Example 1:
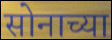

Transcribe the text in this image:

सोनाच्या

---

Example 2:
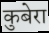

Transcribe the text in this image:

कुबेरा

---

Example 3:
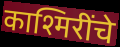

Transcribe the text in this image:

काश्मिरींचे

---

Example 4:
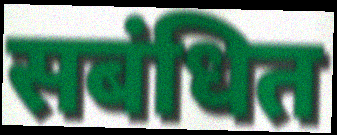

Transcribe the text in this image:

सबंधित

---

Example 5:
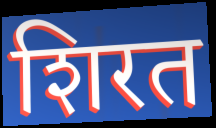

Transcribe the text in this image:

शिरत